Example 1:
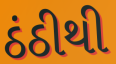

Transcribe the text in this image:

ઠંઠીથી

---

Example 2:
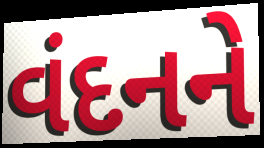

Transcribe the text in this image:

વંદનને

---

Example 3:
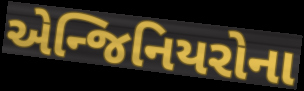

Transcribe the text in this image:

એન્જિનિયરોના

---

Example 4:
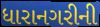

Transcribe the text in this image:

ધારાનગરીની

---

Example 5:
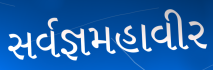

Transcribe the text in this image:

સર્વજ્ઞમહાવીર